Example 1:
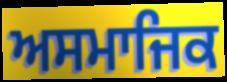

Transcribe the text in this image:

ਅਸਮਾਜਿਕ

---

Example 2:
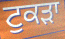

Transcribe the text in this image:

ਟੁਕੜਾ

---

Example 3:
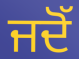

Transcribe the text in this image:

ਜਦੋੱ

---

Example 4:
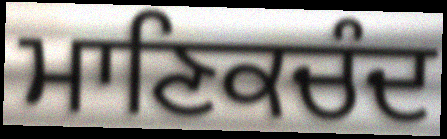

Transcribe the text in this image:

ਮਾਣਿਕਚੰਦ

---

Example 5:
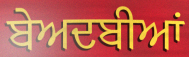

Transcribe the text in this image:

ਬੇਅਦਬੀਆਂ